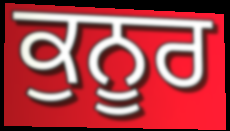
ਕੁਨੂਰ